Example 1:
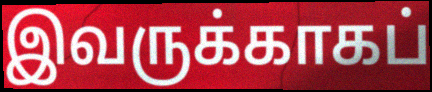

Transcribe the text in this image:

இவருக்காகப்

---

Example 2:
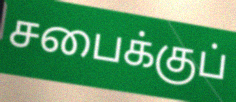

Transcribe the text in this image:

சபைக்குப்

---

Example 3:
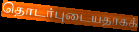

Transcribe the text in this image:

தொடர்புடையதாகக்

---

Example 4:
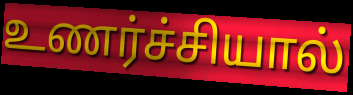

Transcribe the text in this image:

உணர்ச்சியால்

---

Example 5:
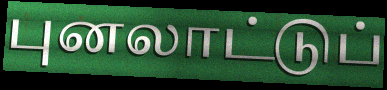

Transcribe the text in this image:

புனலாட்டுப்